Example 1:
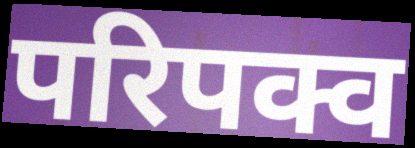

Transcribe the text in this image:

परिपक्व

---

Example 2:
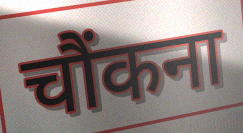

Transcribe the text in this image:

चौंकना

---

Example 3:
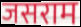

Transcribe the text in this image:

जसराम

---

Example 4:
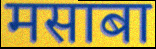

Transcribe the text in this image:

मसाबा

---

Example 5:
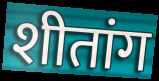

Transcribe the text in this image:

शीतांग